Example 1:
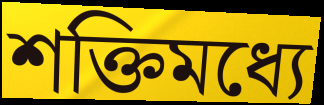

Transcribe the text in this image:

শক্তিমধ্যে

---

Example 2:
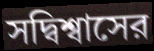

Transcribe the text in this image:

সদ্বিশ্বাসের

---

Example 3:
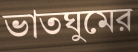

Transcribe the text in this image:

ভাতঘুমের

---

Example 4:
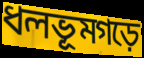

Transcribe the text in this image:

ধলভূমগড়ে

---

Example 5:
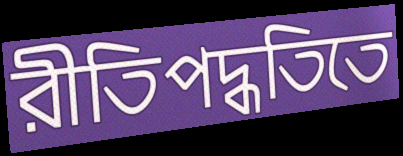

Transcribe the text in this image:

রীতিপদ্ধতিতে